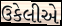
ઉકેલીએ